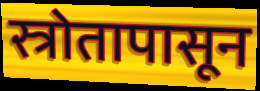
स्त्रोतापासून